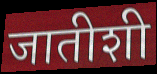
जातीशी